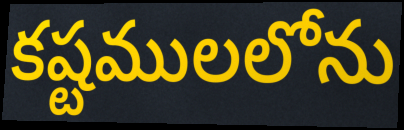
కష్టములలోను